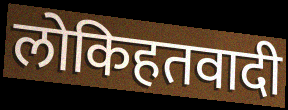
लोकिहतवादी